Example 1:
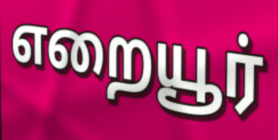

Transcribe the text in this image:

எறையூர்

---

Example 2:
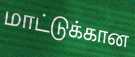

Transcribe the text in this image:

மாட்டுக்கான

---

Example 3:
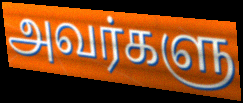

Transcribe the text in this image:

அவர்களு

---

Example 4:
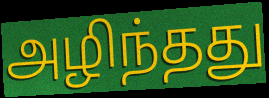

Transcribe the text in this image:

அழிந்தது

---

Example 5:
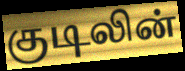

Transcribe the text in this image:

குடிலின்